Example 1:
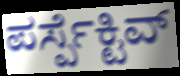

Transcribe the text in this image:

ಪರ್ಸ್ಪೆಕ್ಟಿವ್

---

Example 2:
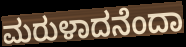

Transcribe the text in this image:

ಮರುಳಾದನೆಂದಾ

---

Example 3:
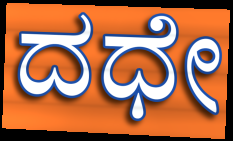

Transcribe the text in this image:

ದಧೇ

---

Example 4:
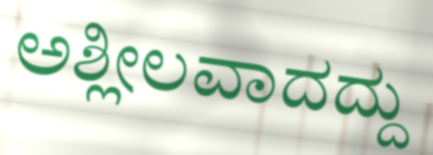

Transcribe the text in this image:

ಅಶ್ಲೀಲವಾದದ್ದು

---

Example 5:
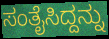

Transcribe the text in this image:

ಸಂತೈಸಿದ್ದನ್ನು